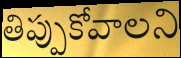
తిప్పుకోవాలని